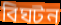
বিঘটন